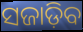
ସଜାଡ଼ିବ